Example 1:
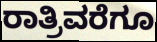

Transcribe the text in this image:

ರಾತ್ರಿವರೆಗೂ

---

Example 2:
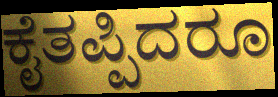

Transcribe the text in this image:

ಕೈತಪ್ಪಿದರೂ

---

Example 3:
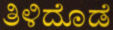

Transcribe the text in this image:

ತಿಳಿದೊಡೆ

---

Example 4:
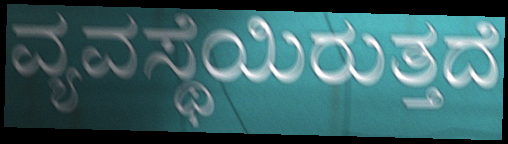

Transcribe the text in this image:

ವ್ಯವಸ್ಥೆಯಿರುತ್ತದೆ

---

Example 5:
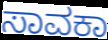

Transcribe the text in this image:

ಸಾವಕಾ